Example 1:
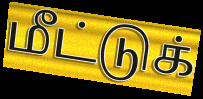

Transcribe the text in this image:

மீட்டுக்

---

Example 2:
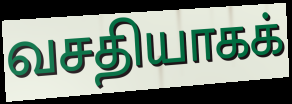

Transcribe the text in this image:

வசதியாகக்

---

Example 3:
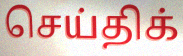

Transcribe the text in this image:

செய்திக்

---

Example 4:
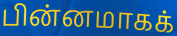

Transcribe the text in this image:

பின்னமாகக்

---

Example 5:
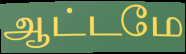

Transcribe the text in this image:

ஆட்டமே